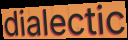
dialectic